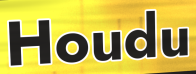
Houdu